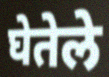
घेतेले